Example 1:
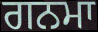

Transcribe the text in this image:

ਗਨਮਾ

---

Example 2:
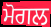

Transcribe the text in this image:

ਮੋਗਲ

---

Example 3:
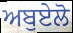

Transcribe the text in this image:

ਅਬੁਏਲੋ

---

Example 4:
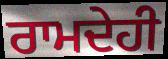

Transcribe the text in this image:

ਰਾਮਦੇਹੀ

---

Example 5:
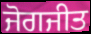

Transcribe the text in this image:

ਜੋਗਜੀਤ